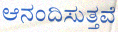
ಆನಂದಿಸುತ್ತವೆ